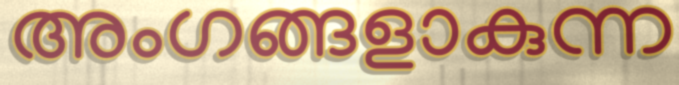
അംഗങ്ങളാകുന്ന